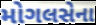
મોગલસેના